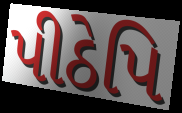
પીઠેપિ